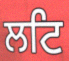
ਲਟਿ